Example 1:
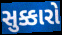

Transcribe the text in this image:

સુક્કારો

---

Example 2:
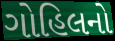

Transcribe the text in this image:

ગોહિલનો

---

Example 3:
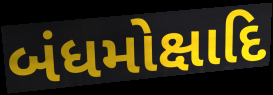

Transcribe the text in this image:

બંધમોક્ષાદિ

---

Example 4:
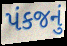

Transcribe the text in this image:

પંકજનું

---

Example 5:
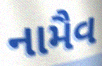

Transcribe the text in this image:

નામૈવ